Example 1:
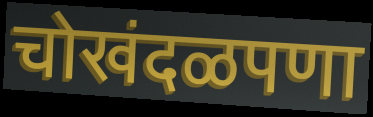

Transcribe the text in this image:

चोखंदळपणा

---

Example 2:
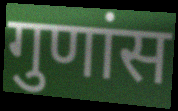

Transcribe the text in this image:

गुणांस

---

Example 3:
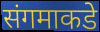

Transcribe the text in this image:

संगमाकडे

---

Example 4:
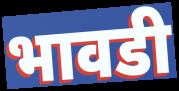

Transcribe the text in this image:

भावडी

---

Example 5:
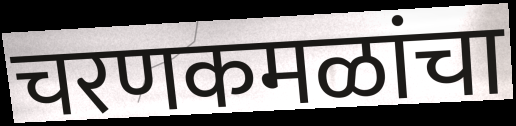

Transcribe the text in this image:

चरणकमळांचा